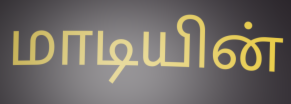
மாடியின்